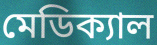
মেডিক্যাল